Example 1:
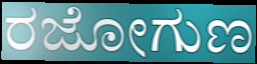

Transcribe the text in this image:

ರಜೋಗುಣ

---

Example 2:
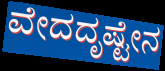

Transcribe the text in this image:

ವೇದದೃಷ್ಟೇನ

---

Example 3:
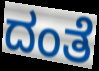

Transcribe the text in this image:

ದಂತೆ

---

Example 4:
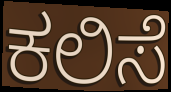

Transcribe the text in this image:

ಕಲಿಸೆ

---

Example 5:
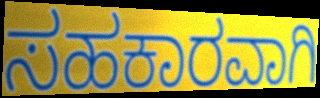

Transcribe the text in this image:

ಸಹಕಾರವಾಗಿ